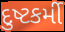
દુષ્ટકર્મી